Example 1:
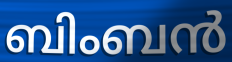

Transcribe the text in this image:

ബിംബൻ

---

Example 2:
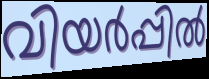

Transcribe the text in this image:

വിയർപ്പിൽ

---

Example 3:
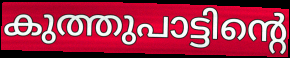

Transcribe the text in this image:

കുത്തുപാട്ടിന്റെ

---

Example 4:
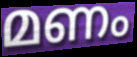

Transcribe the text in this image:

മണം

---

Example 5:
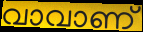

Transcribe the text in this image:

വാവാണ്